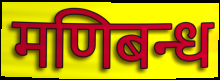
मणिबन्ध